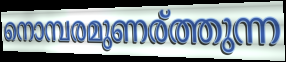
നൊമ്പരമുണര്ത്തുന്ന